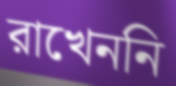
রাখেননি